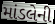
માંડલેની